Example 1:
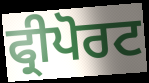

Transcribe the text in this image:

ਫ੍ਰੀਪੋਰਟ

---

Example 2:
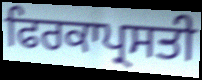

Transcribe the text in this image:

ਫਿਰਕਾਪ੍ਰਸਤੀ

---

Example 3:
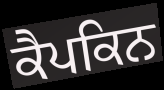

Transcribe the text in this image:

ਕੈਪਕਿਨ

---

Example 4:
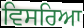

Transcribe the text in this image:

ਵਿਸਰਿਆ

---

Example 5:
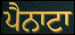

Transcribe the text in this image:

ਪੈਨਾਟਾ